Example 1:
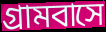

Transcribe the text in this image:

গ্রামবাসে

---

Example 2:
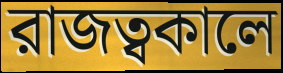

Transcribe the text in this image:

রাজত্বকালে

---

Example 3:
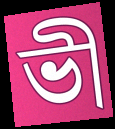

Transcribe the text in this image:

ভী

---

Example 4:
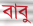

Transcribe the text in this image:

বাবু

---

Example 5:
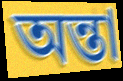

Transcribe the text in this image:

অন্তা